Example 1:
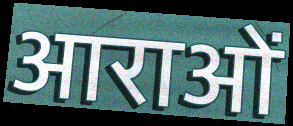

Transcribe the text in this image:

आराओं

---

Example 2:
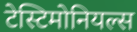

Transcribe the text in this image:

टेस्टिमोनियल्स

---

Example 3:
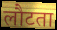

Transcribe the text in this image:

लौटता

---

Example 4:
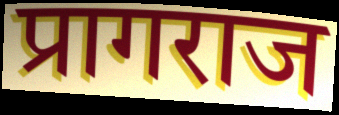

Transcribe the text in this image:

प्रागराज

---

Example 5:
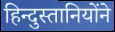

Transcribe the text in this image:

हिन्दुस्तानियोंने